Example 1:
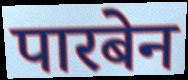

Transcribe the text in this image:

पारबेन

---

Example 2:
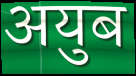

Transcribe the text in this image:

अयुब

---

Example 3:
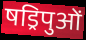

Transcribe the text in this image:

षड्रिपुओं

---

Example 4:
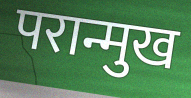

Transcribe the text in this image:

परान्मुख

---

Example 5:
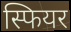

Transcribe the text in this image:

स्फियर